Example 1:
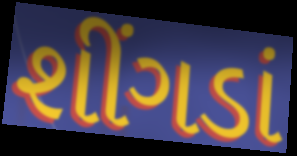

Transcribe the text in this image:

શીંગડાં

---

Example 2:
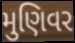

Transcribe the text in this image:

મુણિવર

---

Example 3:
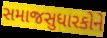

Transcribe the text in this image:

સમાજસુધારકોને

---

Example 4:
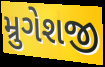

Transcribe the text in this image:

મ્રુગેશજી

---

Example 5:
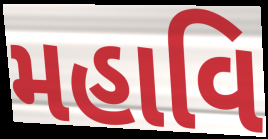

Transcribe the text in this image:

મહાવિ